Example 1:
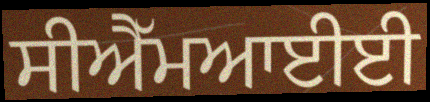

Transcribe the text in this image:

ਸੀਐੱਮਆਈਈ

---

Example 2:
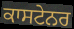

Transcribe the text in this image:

ਕਾਸਟੇਨਰ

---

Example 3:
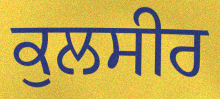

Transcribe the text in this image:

ਕੁਲਸੀਰ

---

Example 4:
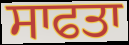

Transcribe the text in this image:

ਸਾਫਤਾ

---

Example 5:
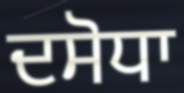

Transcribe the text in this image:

ਦਸੋਧਾ